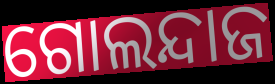
ଗୋଲନ୍ଦାଜ